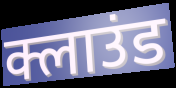
क्लाउंड